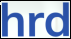
hrd